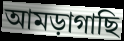
আমড়াগাছি